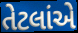
તેટલાંએ